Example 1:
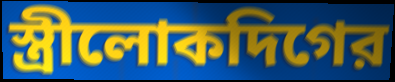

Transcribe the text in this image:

স্ত্রীলোকদিগের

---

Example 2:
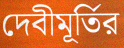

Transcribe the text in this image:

দেবীমূর্তির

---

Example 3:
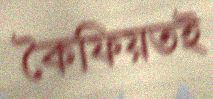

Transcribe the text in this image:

কৈফিয়তই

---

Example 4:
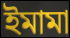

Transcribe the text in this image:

ইমামা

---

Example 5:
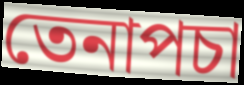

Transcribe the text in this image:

তেনাপচা